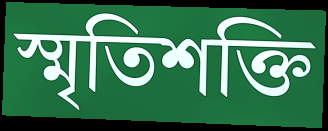
স্মৃতিশক্তি